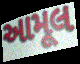
આમૂલ